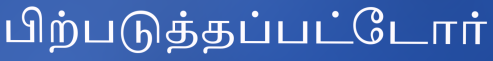
பிற்படுத்தப்பட்டோர்